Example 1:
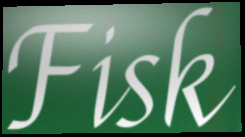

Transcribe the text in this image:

Fisk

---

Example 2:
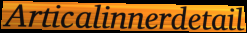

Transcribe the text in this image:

Articalinnerdetail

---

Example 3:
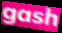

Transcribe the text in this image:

gash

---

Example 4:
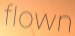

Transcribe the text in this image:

flown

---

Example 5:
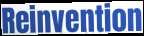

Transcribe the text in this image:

Reinvention